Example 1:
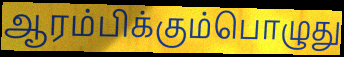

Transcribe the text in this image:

ஆரம்பிக்கும்பொழுது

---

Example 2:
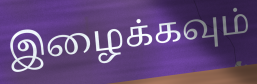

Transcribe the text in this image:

இழைக்கவும்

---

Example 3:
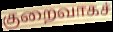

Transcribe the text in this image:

குறைவாகச்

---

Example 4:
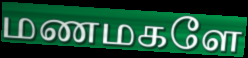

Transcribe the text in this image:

மணமகளே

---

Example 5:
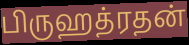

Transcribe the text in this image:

பிருஹத்ரதன்